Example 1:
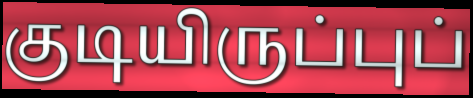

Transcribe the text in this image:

குடியிருப்புப்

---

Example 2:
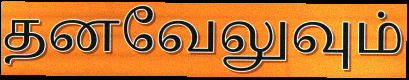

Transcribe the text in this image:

தனவேலுவும்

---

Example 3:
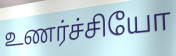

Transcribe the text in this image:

உணர்ச்சியோ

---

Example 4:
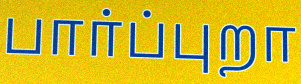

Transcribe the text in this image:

பார்ப்புறா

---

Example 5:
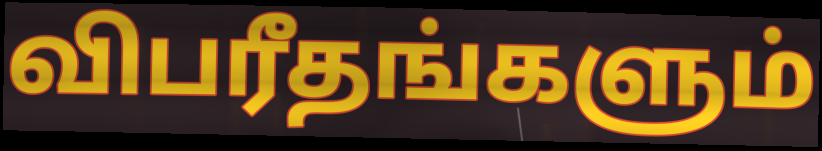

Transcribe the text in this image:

விபரீதங்களும்